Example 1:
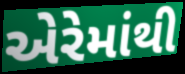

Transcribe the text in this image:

એરેમાંથી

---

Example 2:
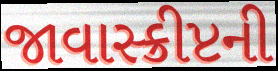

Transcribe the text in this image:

જાવાસ્ક્રીપ્ટની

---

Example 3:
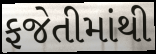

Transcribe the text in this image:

ફજેતીમાંથી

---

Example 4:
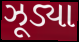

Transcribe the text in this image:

ઝૂડ્યા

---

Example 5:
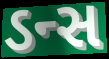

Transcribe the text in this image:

ડન્સ